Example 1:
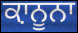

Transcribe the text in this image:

ਕ਼ਾਨੂਨਾ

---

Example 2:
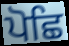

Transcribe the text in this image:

ਪੋਛਿ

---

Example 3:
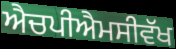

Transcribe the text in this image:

ਐਚਪੀਐਮਸੀਵੱਖ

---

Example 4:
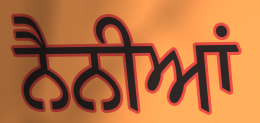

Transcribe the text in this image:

ਨੈਨੀਆਂ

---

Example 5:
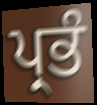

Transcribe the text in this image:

ਪ੍ਰਭੰ